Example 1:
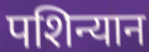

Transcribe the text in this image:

पशिन्यान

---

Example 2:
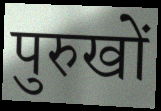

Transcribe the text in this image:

पुरुखों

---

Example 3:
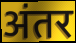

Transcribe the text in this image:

अंतर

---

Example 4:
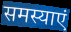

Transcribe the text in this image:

समस्याएं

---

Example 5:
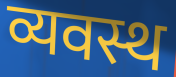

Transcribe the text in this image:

व्यवस्थ